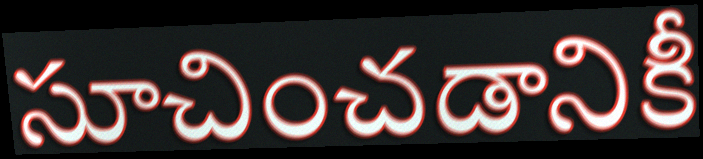
సూచించడానికీ